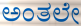
ಅಂತಲೇ